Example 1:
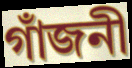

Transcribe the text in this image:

গাঁজনী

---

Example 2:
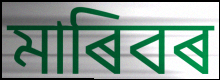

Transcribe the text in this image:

মাৰিবৰ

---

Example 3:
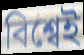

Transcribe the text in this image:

বিশ্বেই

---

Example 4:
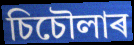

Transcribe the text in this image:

চিচৌলাৰ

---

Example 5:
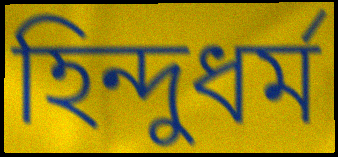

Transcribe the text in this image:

হিন্দুধৰ্ম